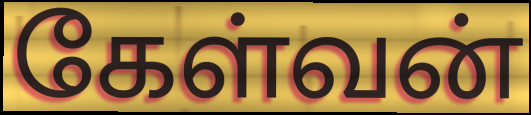
கேள்வன்